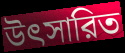
উৎসারিত